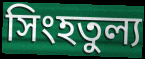
সিংহতুল্য